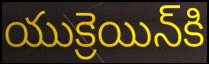
యుక్రెయిన్‌కి